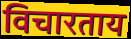
विचारताय